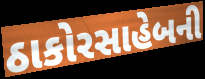
ઠાકોરસાહેબની